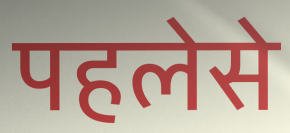
पहलेसे